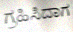
ಗ್ರಹಿಸಿದಾಗ